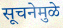
सूचनेमुळे